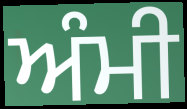
ਅੰਮੀ